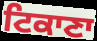
ਟਿਕਾਣਾ